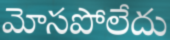
మోసపోలేదు